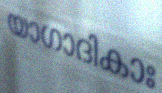
യാഗാദികാഃ